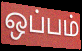
ஒப்பம்